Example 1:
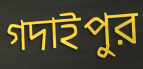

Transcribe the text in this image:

গদাইপুর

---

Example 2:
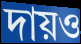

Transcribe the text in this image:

দায়ও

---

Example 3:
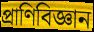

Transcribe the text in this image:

প্রাণিবিজ্ঞান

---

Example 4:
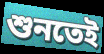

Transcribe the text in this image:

শুনতেই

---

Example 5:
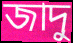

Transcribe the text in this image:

জাদু